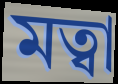
মত্বা